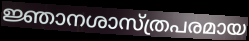
ജ്ഞാനശാസ്ത്രപരമായ